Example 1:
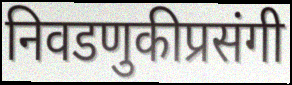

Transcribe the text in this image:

निवडणुकीप्रसंगी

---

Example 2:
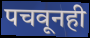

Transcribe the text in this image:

पचवूनही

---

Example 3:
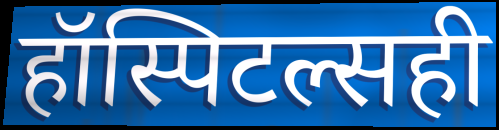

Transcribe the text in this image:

हॉस्पिटल्सही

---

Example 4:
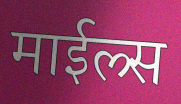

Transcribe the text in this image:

माईल्स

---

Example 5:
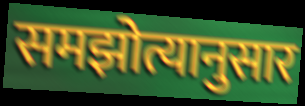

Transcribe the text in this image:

समझोत्यानुसार